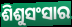
ଶିଶୁସଂସାର